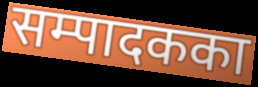
सम्पादकका